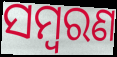
ସମ୍ଵରଣ